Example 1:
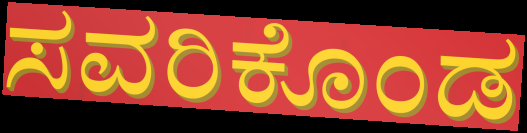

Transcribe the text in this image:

ಸವರಿಕೊಂಡ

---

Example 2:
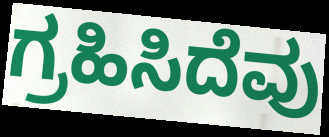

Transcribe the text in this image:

ಗ್ರಹಿಸಿದೆವು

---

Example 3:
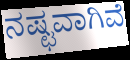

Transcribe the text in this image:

ನಷ್ಟವಾಗಿವೆ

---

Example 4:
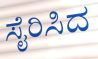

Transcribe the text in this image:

ಸೈರಿಸಿದ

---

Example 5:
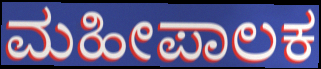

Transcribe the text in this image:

ಮಹೀಪಾಲಕ